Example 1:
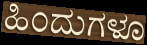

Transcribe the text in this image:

ಹಿಂದುಗಳೂ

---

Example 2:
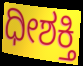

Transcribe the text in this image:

ಧೀಶಕ್ತಿ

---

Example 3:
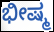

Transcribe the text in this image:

ಭೀಷ್ಮ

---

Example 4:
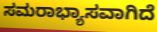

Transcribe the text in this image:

ಸಮರಾಭ್ಯಾಸವಾಗಿದೆ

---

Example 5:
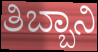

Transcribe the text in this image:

ತಿಬ್ಬಾನಿ